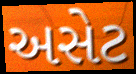
અસેટ